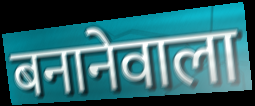
बनानेवाला